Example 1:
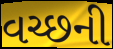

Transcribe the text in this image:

વચ્છની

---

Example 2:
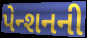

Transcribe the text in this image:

પેન્શનની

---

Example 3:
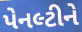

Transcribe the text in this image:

પેનલ્ટીને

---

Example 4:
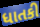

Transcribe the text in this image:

ધાતકી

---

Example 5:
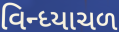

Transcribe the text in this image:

વિન્ધ્યાચળ